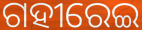
ଗହୀରେଇ